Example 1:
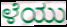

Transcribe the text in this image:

ಳೆಯು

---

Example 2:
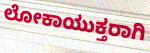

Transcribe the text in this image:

ಲೋಕಾಯುಕ್ತರಾಗಿ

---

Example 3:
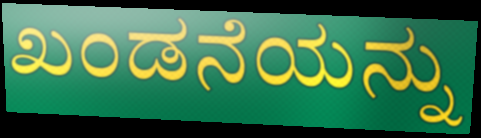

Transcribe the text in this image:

ಖಂಡನೆಯನ್ನು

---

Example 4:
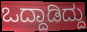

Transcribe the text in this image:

ಒದ್ದಾಡಿದ್ದು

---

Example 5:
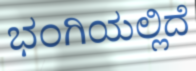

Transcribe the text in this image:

ಭಂಗಿಯಲ್ಲಿದೆ